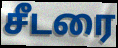
சீடரை